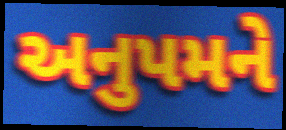
અનુપમને